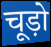
चूड़ो